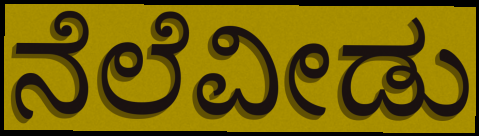
ನೆಲೆವೀಡು